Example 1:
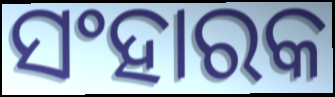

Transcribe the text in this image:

ସଂହାରକ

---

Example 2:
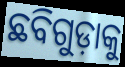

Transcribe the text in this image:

ଛବିଗୁଡ଼ାକୁ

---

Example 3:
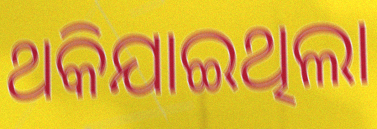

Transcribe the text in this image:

ଥକିଯାଇଥିଲା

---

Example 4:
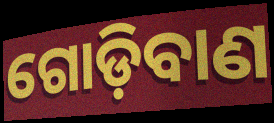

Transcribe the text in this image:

ଗୋଡ଼ିବାଣ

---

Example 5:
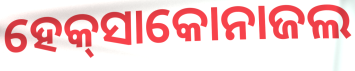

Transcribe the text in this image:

ହେକ୍‌ସାକୋନାଜଲ